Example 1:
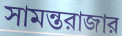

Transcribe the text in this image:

সামন্তরাজার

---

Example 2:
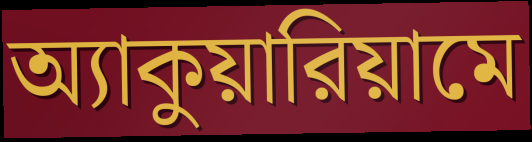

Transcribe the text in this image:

অ্যাকুয়ারিয়ামে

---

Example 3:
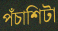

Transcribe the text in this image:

পঁচাশিটা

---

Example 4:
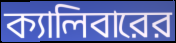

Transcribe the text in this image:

ক্যালিবারের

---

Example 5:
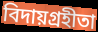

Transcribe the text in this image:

বিদায়গ্রহীতা